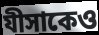
যীসাকেও